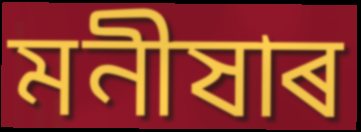
মনীষাৰ